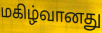
மகிழ்வானது